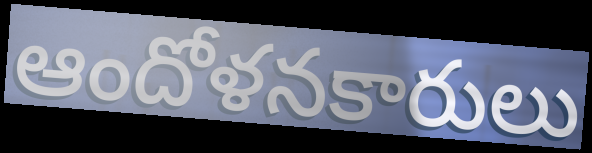
ఆందోళనకారులు